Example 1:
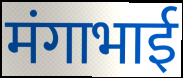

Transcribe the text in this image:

मंगाभाई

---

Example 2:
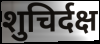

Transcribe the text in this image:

शुचिर्दक्ष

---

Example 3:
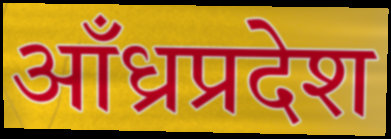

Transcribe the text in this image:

आँध्रप्रदेश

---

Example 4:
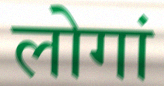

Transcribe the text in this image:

लोगां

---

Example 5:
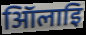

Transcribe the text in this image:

ऑिलाइि